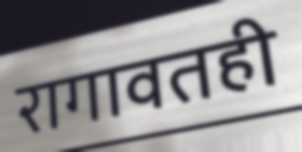
रागावतही